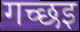
गच्छइ